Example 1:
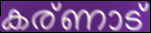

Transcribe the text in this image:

കര്ണാട്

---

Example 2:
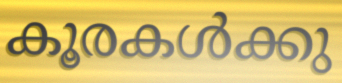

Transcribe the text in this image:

കൂരകൾക്കു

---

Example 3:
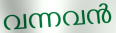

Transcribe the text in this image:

വന്നവൻ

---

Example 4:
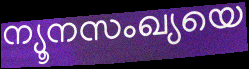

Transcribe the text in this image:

ന്യൂനസംഖ്യയെ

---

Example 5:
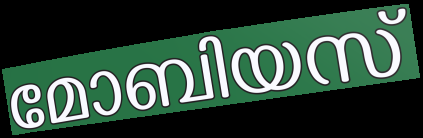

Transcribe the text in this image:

മോബിയസ്